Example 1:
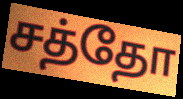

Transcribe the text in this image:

சத்தோ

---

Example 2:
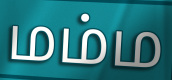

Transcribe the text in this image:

மம்ம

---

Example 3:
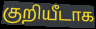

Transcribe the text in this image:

குறியீடாக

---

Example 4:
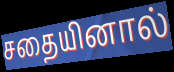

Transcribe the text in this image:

சதையினால்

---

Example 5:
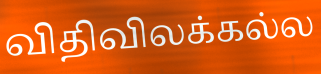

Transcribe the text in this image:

விதிவிலக்கல்ல